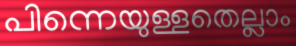
പിന്നെയുള്ളതെല്ലാം